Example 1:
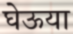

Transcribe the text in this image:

घेऊया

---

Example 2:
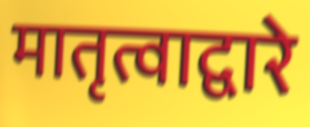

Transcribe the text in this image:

मातृत्वाद्वारे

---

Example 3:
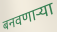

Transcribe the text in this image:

बनवणार्‍या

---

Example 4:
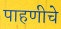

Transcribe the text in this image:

पाहणीचे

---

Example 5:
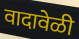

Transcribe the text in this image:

वादावेळी